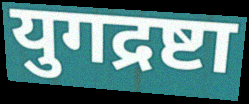
युगद्रष्टा